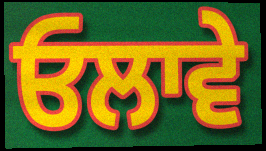
ਓਲਾਵੇ